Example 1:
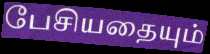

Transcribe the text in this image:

பேசியதையும்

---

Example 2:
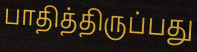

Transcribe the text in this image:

பாதித்திருப்பது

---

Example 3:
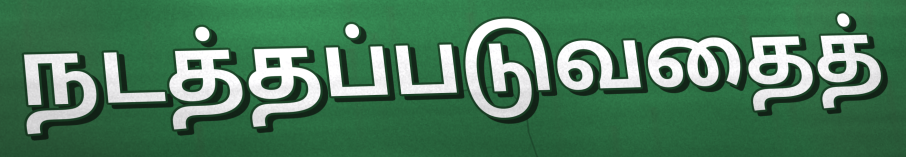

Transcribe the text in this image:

நடத்தப்படுவதைத்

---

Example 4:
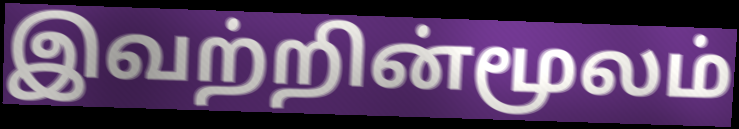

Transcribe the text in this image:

இவற்றின்மூலம்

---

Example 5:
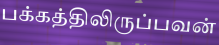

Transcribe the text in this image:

பக்கத்திலிருப்பவன்